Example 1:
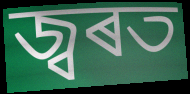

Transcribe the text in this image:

জ্বৰত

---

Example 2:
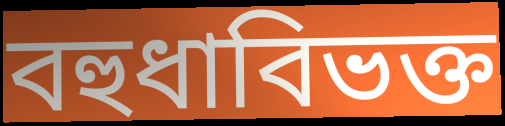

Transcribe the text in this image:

বহুধাবিভক্ত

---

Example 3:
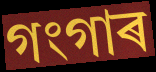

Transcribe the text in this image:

গংগাৰ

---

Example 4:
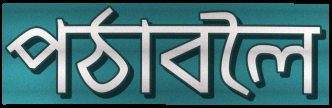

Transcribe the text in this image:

পঠাবলৈ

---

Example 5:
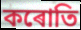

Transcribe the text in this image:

কৰোতি